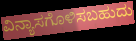
ವಿನ್ಯಾಸಗೊಳಿಸಬಹುದು